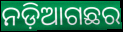
ନଡ଼ିଆଗଛର